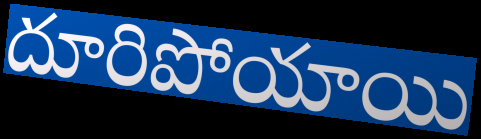
దూరిపోయాయి